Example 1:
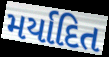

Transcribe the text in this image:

મર્યાદિત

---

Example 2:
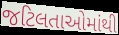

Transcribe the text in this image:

જટિલતાઓમાંથી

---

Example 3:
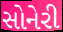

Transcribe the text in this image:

સોનેરી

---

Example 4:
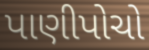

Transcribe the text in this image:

પાણીપોચો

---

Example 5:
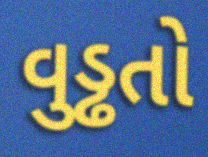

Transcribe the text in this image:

વુડ્ઢતો